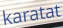
karatat